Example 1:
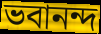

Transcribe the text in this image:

ভবানন্দ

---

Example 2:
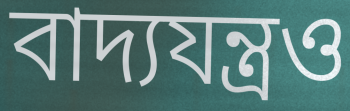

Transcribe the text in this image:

বাদ্যযন্ত্রও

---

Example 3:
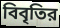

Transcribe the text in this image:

বিবৃতির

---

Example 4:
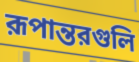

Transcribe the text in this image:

রূপান্তরগুলি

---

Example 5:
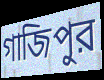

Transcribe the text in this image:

গাজিপুর